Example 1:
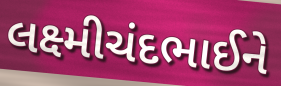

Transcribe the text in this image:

લક્ષ્મીચંદભાઈને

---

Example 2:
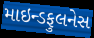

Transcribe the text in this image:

માઇન્ડફુલનેસ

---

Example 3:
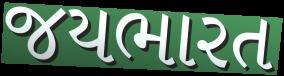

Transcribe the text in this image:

જયભારત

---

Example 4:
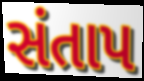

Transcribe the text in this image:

સંતાપ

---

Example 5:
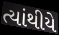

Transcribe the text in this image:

ત્યાંથીયે